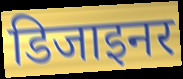
डिजाइनर